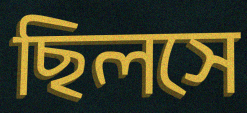
ছিলসে